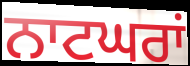
ਨਾਟਘਰਾਂ